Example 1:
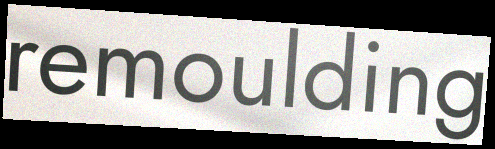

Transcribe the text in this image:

remoulding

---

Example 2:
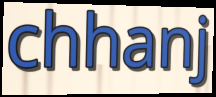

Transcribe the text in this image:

chhanj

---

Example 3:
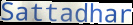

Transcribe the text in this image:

Sattadhar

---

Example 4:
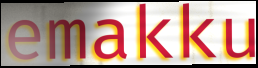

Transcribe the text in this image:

emakku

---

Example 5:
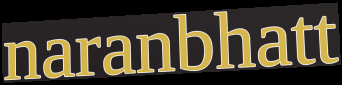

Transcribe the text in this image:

naranbhatt